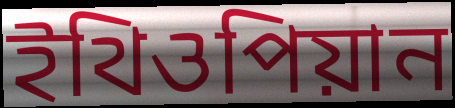
ইথিওপিয়ান